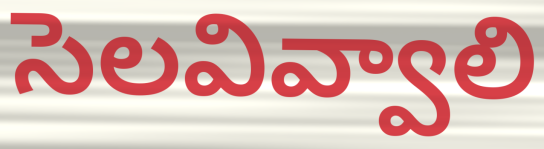
సెలవివ్వాలి